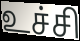
உச்சி